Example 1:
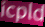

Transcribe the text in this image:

icpld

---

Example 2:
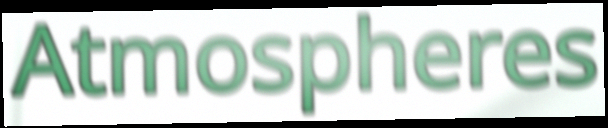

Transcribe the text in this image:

Atmospheres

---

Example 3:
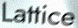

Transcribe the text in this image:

Lattice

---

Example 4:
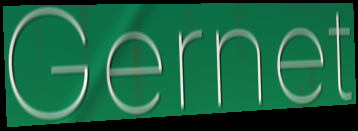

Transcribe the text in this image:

Gernet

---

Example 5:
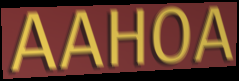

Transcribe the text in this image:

AAHOA